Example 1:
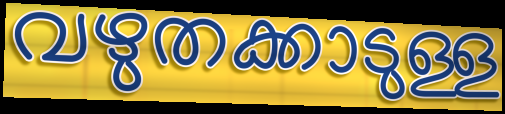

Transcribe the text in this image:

വഴുതക്കാടുള്ള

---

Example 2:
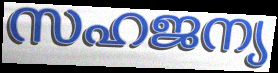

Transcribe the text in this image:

സഹജന്യ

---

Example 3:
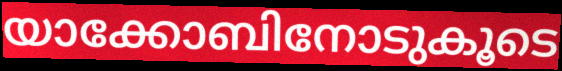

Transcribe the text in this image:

യാക്കോബിനോടുകൂടെ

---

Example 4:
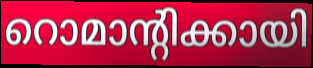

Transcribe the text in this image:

റൊമാന്റിക്കായി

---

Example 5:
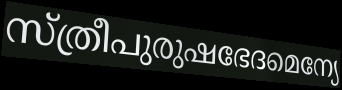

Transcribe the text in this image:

സ്ത്രീപുരുഷഭേദമെന്യേ